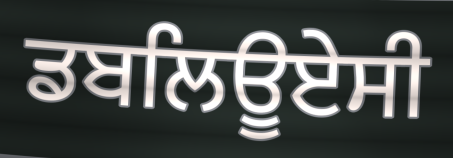
ਡਬਲਿਊਏਸੀ